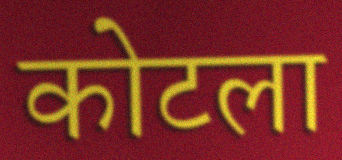
कोटला